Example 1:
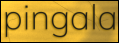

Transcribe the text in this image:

pingala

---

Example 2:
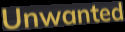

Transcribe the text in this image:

Unwanted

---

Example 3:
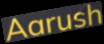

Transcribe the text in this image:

Aarush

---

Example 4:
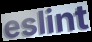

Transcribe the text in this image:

eslint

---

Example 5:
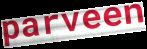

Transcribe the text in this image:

parveen